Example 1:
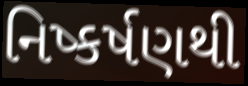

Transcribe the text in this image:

નિષ્કર્ષણથી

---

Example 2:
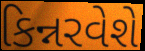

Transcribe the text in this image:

કિન્નરવેશે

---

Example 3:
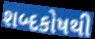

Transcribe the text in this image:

શબ્દકોષથી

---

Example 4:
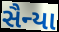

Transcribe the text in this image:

સૈન્યા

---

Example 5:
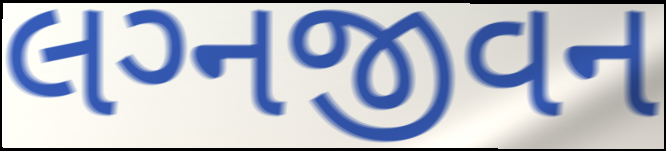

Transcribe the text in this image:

લગ્‍નજીવન